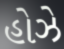
હોઝે